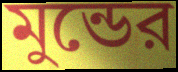
মুন্ডের